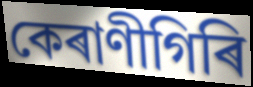
কেৰাণীগিৰি